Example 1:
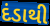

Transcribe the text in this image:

દંડાથી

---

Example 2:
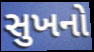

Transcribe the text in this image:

સુખનો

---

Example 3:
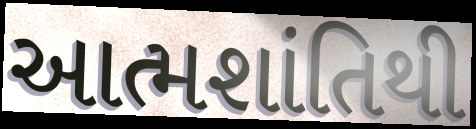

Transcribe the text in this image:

આત્મશાંતિથી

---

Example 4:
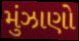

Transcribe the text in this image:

મુંઝાણો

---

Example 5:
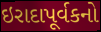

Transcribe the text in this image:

ઇરાદાપૂર્વકનો